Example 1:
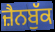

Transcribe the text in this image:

ਜ਼ੈਨਬੁੱਕ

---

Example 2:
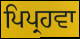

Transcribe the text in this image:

ਪਿਪ੍ਰਹਵਾ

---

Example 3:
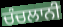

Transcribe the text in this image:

ਚੰਚਲਾਨੀ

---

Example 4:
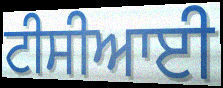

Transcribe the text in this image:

ਟੀਸੀਆਈ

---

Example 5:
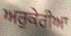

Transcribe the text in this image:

ਅਰੁਕੇਰੀਆ